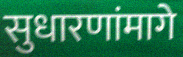
सुधारणांमागे